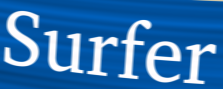
Surfer